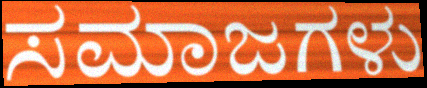
ಸಮಾಜಗಳು